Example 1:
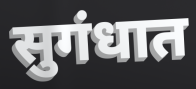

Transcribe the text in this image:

सुगंधात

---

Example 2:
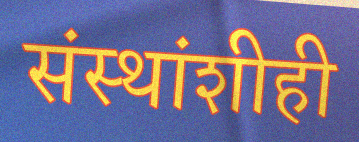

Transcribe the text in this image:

संस्थांशीही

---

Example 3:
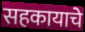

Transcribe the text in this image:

सहकायाचे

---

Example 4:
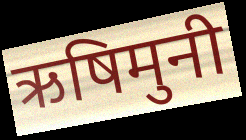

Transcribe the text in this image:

ऋषिमुनी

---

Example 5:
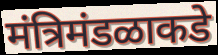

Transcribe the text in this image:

मंत्रिमंडळाकडे